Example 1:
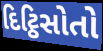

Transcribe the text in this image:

દિટ્ઠિસોતો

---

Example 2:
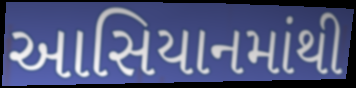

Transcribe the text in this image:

આસિયાનમાંથી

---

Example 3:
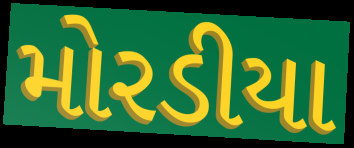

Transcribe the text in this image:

મોરડીયા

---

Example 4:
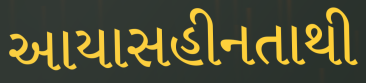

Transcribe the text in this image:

આયાસહીનતાથી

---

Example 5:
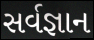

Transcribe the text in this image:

સર્વજ્ઞાન